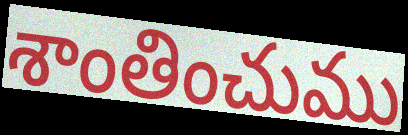
శాంతించుము